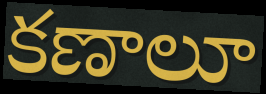
కణాలూ